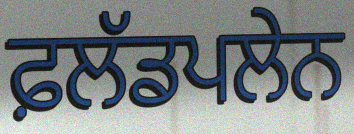
ਫ਼ਲੱਡਪਲੇਨ